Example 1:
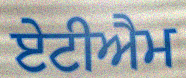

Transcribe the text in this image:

ਏਟੀਐਮ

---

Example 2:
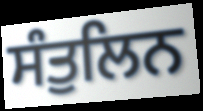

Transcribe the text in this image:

ਸੰਤੁਲਿਨ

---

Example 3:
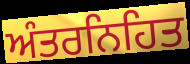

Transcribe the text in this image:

ਅੰਤਰਨਿਹਿਤ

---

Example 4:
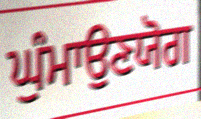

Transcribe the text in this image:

ਘੁੰਮਾਉਣਯੋਗ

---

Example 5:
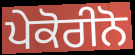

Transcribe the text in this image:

ਪੇਕੋਰੀਨੋ